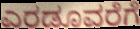
ಎರಡೂವರೆಗೆ